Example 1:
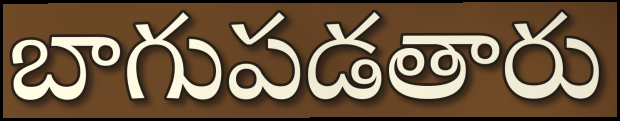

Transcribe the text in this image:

బాగుపడతారు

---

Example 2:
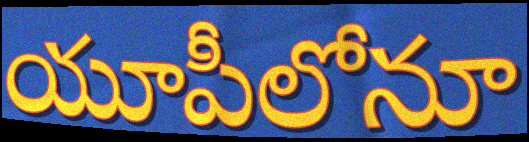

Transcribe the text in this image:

యూపీలోనూ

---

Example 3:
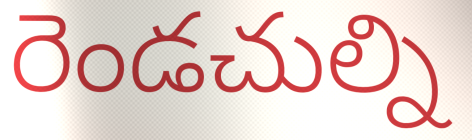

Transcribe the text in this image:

రెండచుల్ని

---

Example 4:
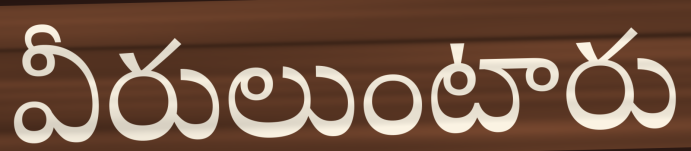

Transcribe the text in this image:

వీరులుంటారు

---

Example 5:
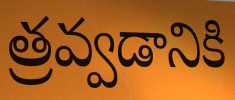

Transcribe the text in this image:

త్రవ్వడానికి